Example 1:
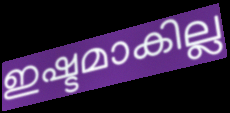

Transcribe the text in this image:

ഇഷ്ടമാകില്ല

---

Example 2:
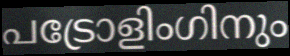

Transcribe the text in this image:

പട്രോളിംഗിനും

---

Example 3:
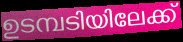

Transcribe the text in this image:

ഉടമ്പടിയിലേക്ക്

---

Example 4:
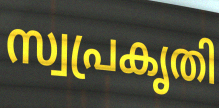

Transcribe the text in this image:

സ്വപ്രകൃതി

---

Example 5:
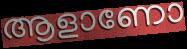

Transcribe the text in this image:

ആളാണോ